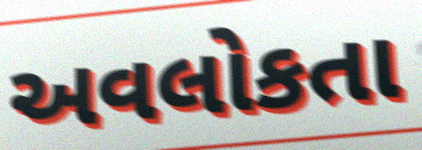
અવલોકતા